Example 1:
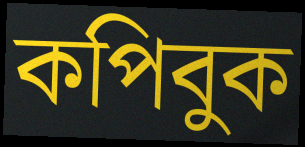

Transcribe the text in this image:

কপিবুক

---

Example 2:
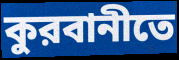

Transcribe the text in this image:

কুরবানীতে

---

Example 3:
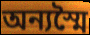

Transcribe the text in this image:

অন্যস্মৈ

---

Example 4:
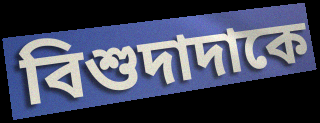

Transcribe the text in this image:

বিশুদাদাকে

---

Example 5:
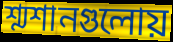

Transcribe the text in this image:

শ্মশানগুলোয়